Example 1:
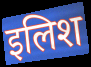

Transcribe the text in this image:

इलिश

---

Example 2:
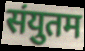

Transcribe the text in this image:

संयुतम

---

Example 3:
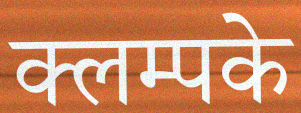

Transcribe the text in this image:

क्लम्पके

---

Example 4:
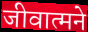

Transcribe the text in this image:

जीवात्मने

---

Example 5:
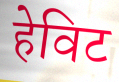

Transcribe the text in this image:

हेविट